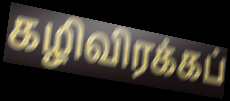
கழிவிரக்கப்